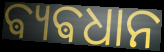
ଵ୍ୟଵଧାନ